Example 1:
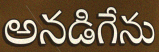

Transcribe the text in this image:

అనడిగేను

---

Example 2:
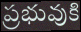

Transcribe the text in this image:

ప్రభువుకి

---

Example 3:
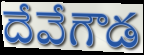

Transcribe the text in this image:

దేవేగౌడ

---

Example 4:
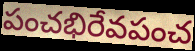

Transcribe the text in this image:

పంచభిరేవపంచ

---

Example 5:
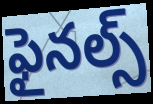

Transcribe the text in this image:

ఫైనల్స్